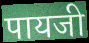
पायजी